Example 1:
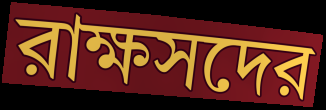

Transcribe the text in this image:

রাক্ষসদের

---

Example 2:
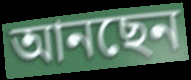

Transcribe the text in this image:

আনছেন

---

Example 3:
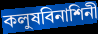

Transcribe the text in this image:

কলুষবিনাশিনী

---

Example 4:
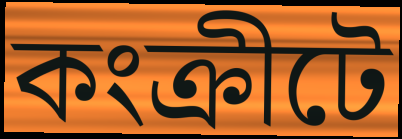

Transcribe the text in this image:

কংক্রীটে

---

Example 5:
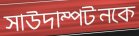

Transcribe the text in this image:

সাউদাম্পটনকে